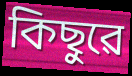
কিছুৱে